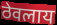
ठेवलाय